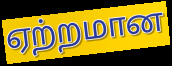
ஏற்றமான